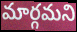
మార్గమని